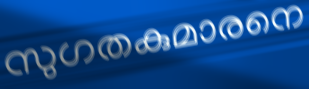
സുഗതകുമാരനെ